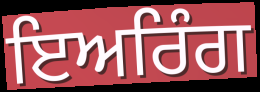
ਇਅਰਿੰਗ